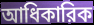
আধিকারিক